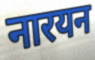
नारयन